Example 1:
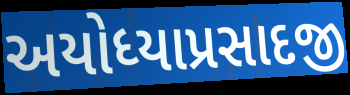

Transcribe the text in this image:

અયોધ્યાપ્રસાદજી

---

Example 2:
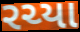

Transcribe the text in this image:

રચ્યા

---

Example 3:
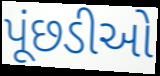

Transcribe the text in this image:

પૂંછડીઓ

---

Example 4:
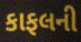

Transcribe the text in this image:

કાફલની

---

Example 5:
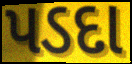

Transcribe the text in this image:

પડદા